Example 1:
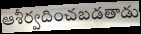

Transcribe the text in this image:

ఆశీర్వదించబడతాడు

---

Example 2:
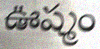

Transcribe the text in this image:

ఊష్మం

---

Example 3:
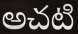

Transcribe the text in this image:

అచటి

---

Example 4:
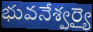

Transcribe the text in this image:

భువనేశ్వర్యై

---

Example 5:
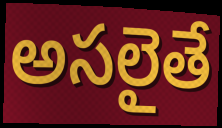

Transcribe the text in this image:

అసలైతే